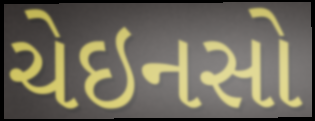
ચેઇનસો